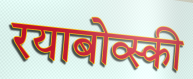
रयाबोव्स्की